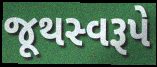
જૂથસ્વરૂપે